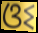
ଓଽ